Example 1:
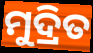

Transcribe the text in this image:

ମୁଦ୍ରିତ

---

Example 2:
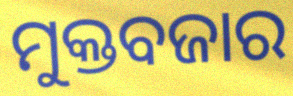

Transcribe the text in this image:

ମୁକ୍ତବଜାର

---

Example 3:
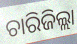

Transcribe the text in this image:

ଚାରିଜିଲ୍ଲା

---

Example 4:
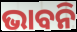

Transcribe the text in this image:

ଭାବନି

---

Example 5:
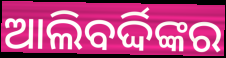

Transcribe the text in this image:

ଆଲିବର୍ଦ୍ଦିଙ୍କର